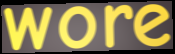
wore